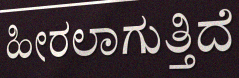
ಹೀರಲಾಗುತ್ತಿದೆ